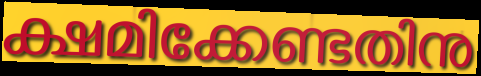
ക്ഷമിക്കേണ്ടതിനു